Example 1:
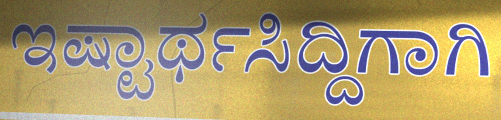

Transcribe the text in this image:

ಇಷ್ಟಾರ್ಥಸಿದ್ದಿಗಾಗಿ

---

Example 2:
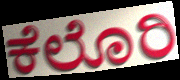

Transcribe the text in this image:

ಕೆಲೊರಿ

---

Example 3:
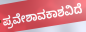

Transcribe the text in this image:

ಪ್ರವೇಶಾವಕಾಶವಿದೆ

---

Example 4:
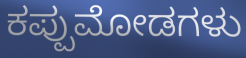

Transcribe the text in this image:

ಕಪ್ಪುಮೋಡಗಳು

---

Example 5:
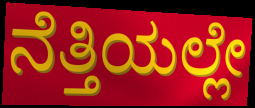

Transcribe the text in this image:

ನೆತ್ತಿಯಲ್ಲೇ